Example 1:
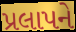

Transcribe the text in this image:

પ્રલાપને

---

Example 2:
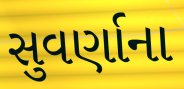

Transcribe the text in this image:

સુવર્ણાના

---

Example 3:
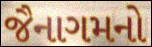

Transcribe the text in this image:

જૈનાગમનો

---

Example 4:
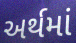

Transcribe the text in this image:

અર્થમાં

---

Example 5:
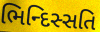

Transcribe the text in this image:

ભિન્દિસ્સતિ